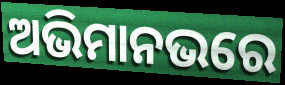
ଅଭିମାନଭରେ